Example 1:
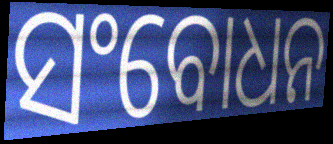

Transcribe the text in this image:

ସଂବୋଧନ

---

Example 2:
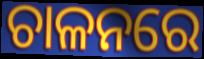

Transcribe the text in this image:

ଚାଳନରେ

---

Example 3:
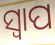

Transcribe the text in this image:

ସ୍ବାପ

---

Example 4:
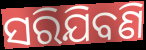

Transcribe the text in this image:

ସରିଯିବଣି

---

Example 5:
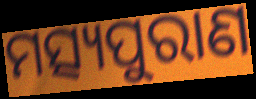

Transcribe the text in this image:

ମତ୍ସ୍ୟପୁରାଣ